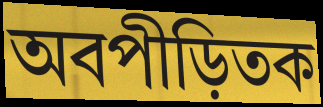
অবপীড়িতক